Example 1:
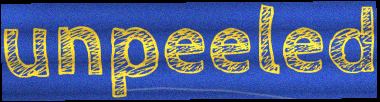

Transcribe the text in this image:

unpeeled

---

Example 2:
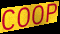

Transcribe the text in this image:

COOP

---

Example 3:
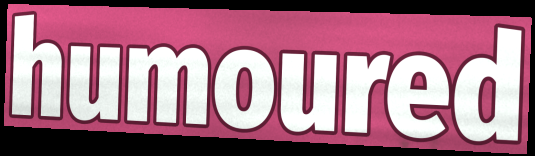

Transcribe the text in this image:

humoured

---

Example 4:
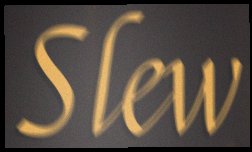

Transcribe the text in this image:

Slew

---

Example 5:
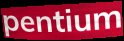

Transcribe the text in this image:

pentium